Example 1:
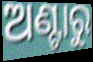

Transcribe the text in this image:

ଅଣ୍ଟାରୁ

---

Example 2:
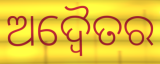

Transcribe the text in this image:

ଅଦ୍ଵୈତର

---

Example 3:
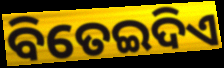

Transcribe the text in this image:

ବିତେଇଦିଏ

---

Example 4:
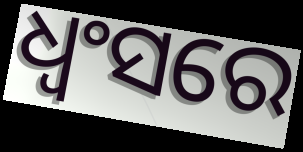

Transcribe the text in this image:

ଧ୍ଵଂସରେ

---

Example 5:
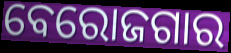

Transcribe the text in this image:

ବେରୋଜଗାର